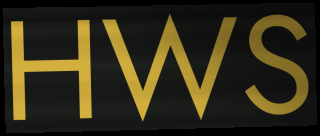
HWS